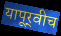
यापूर्वीच